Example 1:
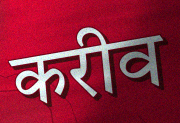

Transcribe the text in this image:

करीव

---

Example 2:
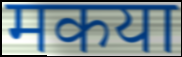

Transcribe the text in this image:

मकया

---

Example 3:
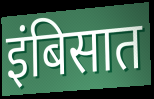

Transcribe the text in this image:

इंबिसात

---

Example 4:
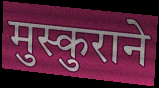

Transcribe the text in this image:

मुस्‍कुराने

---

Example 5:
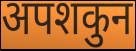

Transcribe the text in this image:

अपशकुन